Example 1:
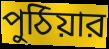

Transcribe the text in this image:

পুঠিয়ার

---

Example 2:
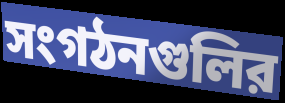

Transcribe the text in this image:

সংগঠনগুলির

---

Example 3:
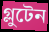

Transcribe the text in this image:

গ্লুটেন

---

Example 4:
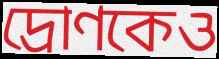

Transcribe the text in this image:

দ্রোণকেও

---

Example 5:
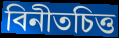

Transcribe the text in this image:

বিনীতচিত্ত